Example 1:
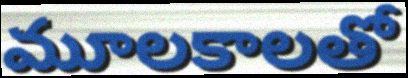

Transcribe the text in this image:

మూలకాలతో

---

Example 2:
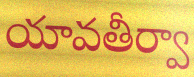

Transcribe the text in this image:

యావతీర్వా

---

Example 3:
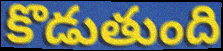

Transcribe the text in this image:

కొడుతుంది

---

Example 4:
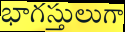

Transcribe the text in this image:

భాగస్తులుగా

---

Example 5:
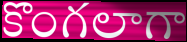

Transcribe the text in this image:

కొంగలాగా